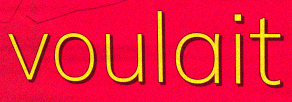
voulait